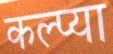
कल्प्या